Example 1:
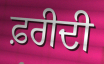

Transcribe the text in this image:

ਫ਼ਰੀਦੀ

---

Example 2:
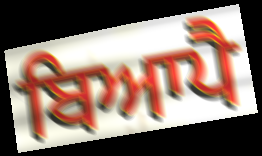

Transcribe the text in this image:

ਬਿਆਪੈ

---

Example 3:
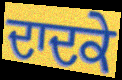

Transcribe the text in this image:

ਦਾਦਕੇ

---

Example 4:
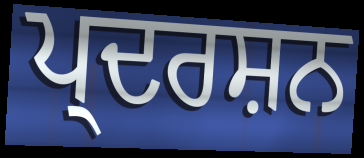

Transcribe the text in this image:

ਪ੍ਦਰਸ਼ਨ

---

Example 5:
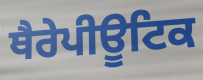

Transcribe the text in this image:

ਥੈਰੇਪੀਊਟਿਕ